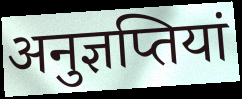
अनुज्ञप्तियां